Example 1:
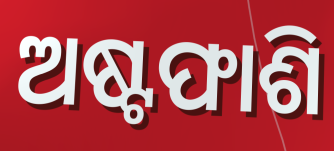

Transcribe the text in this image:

ଅଷ୍ଟଫାଶି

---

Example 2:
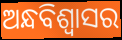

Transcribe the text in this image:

ଅନ୍ଧବିଶ୍ୱାସର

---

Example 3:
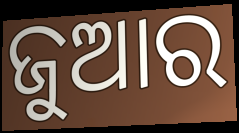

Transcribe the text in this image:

ଜୁଆର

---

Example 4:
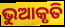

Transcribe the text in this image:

ଭୁଆକୃତି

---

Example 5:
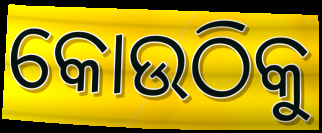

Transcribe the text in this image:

କୋଉଠିକୁ